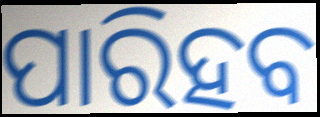
ପାରିହବ